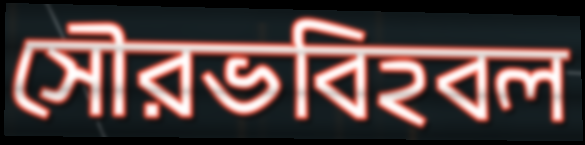
সৌরভবিহবল